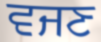
ਵਜਣ